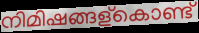
നിമിഷങ്ങള്കൊണ്ട്